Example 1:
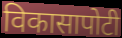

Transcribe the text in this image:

विकासापोटी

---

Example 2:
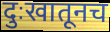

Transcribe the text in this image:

दुःखातूनच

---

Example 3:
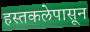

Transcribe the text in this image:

हस्तकलेपासून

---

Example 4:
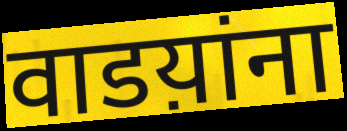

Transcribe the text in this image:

वाडय़ांना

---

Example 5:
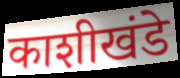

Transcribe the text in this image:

काशीखंडे